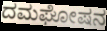
ದಮಘೋಷನ